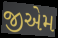
જીએમ